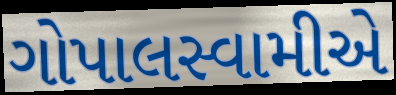
ગોપાલસ્વામીએ